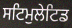
ਸਟਿਮੁਲੇਟਿਡ